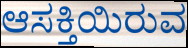
ಆಸಕ್ತಿಯಿರುವ